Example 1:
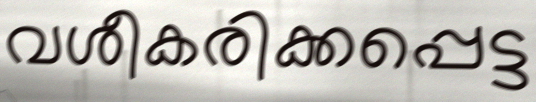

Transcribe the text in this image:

വശീകരിക്കപ്പെട്ട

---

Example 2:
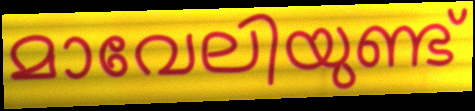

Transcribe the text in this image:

മാവേലിയുണ്ട്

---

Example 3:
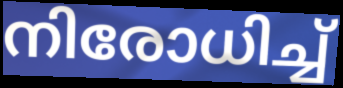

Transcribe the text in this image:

നിരോധിച്ച്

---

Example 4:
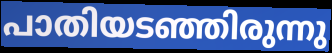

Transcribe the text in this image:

പാതിയടഞ്ഞിരുന്നു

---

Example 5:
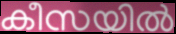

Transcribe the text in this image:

കീസയിൽ